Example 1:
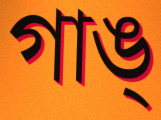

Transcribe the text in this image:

গাঙ্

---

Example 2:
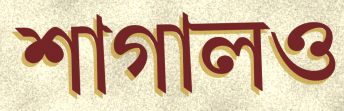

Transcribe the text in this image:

শাগালও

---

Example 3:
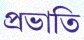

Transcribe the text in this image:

প্রভাতি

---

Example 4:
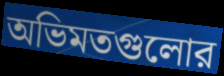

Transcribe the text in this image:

অভিমতগুলোর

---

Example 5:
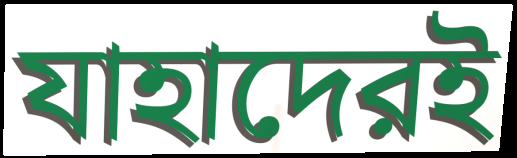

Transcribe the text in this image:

যাহাদেরই